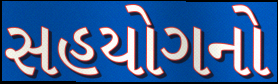
સહયોગનો